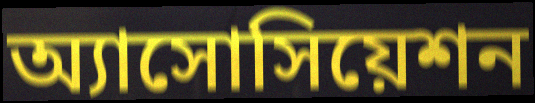
অ্যাসোসিয়েশন